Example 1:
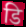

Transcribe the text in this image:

डि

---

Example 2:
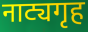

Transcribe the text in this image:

नाट्यगृह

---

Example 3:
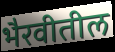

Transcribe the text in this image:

भैरवीतील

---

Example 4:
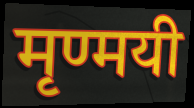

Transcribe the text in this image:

मृण्मयी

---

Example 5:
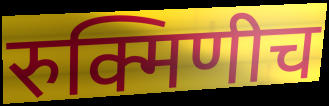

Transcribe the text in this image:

रुक्मिणीच